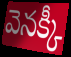
వెనక్కీ